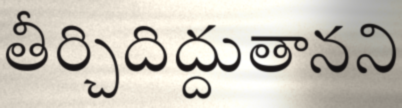
తీర్చిదిద్దుతానని